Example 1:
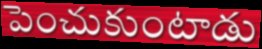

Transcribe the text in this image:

పెంచుకుంటాడు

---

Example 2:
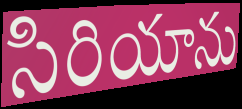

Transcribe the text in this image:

సిరియాను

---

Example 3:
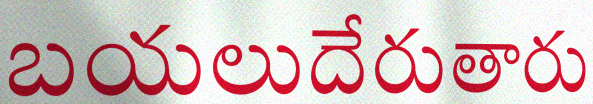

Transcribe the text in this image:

బయలుదేరుతారు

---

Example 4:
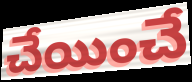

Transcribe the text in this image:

చేయించే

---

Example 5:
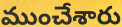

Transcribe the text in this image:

ముంచేశారు